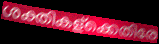
ശക്തികള്ക്കെതിരേ